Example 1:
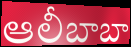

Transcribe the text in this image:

ఆలీబాబా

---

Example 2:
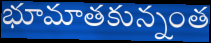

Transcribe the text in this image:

భూమాతకున్నంత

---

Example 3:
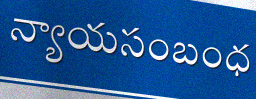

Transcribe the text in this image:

న్యాయసంబంధ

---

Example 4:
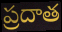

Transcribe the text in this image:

ప్రదాత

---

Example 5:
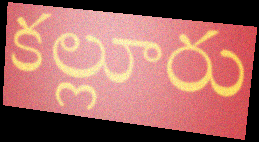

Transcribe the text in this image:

కల్లూరు